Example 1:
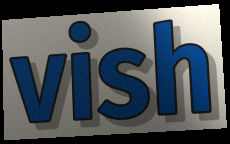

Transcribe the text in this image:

vish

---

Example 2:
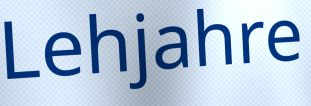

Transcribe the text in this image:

Lehjahre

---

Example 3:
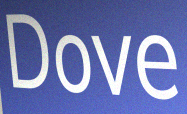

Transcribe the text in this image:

Dove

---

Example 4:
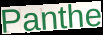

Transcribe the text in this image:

Panthe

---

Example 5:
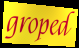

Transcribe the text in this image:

groped